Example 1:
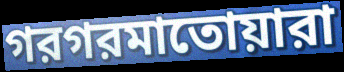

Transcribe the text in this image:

গরগরমাতোয়ারা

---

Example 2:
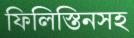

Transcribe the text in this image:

ফিলিস্তিনসহ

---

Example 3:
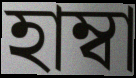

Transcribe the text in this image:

হাম্বা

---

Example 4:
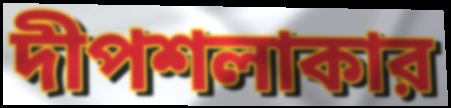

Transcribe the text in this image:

দীপশলাকার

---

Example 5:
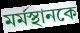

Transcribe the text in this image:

মর্মস্থানকে